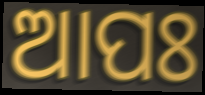
ଆପଃ